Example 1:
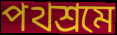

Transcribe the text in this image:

পথশ্রমে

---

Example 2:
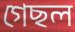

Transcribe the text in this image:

গেছল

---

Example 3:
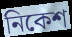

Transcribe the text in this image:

নিকেশ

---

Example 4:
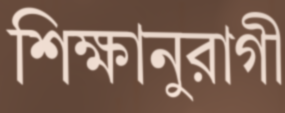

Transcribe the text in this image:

শিক্ষানুরাগী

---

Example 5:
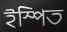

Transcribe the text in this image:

ইস্পিত